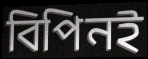
বিপিনই